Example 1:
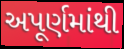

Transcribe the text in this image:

અપૂર્ણમાંથી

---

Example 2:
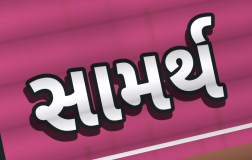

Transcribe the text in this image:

સામર્થ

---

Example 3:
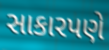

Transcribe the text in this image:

સાકારપણે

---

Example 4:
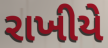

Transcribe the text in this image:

રાખીયે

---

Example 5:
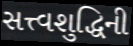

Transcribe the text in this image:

સત્ત્વશુદ્ધિની